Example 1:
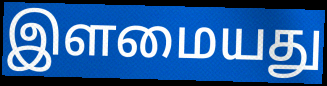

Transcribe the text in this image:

இளமையது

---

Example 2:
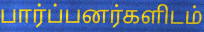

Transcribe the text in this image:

பார்ப்பனர்களிடம்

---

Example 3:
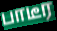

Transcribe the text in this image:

பாடீர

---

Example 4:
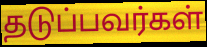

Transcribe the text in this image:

தடுப்பவர்கள்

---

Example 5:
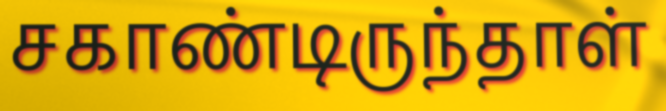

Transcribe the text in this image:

சகாண்டிருந்தாள்